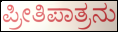
ಪ್ರೀತಿಪಾತ್ರನು